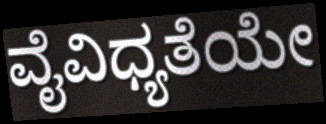
ವೈವಿಧ್ಯತೆಯೇ